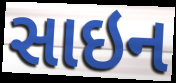
સાઇન